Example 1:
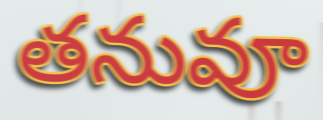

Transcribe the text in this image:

తనువూ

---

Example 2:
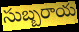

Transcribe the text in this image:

సుబ్బరాయ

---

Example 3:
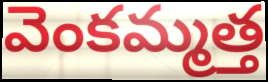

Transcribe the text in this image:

వెంకమ్మత్త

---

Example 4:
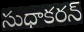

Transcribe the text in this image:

సుధాకరన్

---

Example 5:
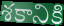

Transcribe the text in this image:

శకానికి